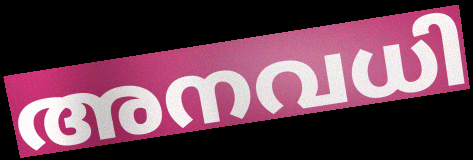
അനവധി